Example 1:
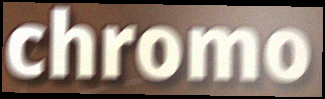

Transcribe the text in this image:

chromo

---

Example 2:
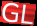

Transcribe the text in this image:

GL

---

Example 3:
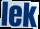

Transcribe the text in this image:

lek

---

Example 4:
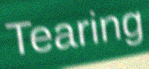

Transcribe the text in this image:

Tearing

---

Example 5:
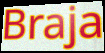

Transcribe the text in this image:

Braja